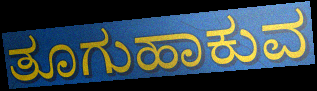
ತೂಗುಹಾಕುವ